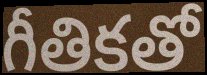
గీతికతో